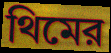
থিমের